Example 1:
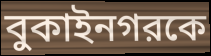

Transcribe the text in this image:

বুকাইনগরকে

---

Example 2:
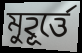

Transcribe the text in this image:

মুহূর্ত্তে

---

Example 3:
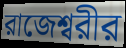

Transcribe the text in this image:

রাজেশ্বরীর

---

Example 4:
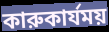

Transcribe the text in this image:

কারুকার্যময়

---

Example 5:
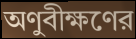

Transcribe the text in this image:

অণুবীক্ষণের